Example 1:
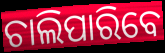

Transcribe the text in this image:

ଚାଲିପାରିବେ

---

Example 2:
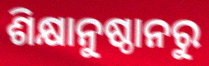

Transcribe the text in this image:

ଶିକ୍ଷାନୁଷ୍ଠାନରୁ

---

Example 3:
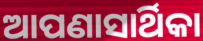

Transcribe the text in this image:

ଆପଣାସାର୍ଥିକା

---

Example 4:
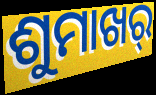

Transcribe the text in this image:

ଶୁମାଖର୍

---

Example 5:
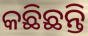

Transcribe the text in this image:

କଛିଛନ୍ତି